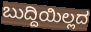
ಬುದ್ದಿಯಿಲ್ಲದ